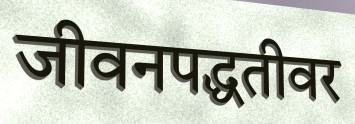
जीवनपद्धतीवर